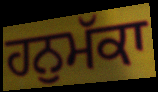
ਹਨੁਮੱਕਾ